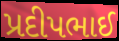
પ્રદીપભાઈ